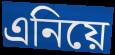
এনিয়ে